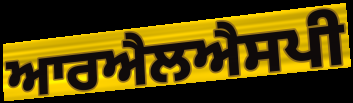
ਆਰਐਲਐਸਪੀ